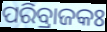
ପରିବ୍ରାଜକଃ